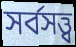
সর্বসত্ত্ব